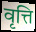
वृत्ति